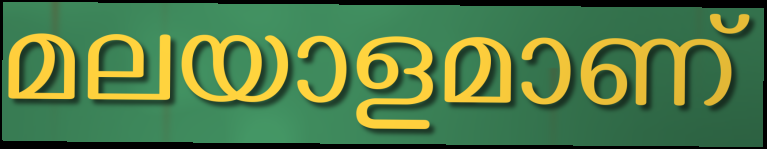
മലയാളമാണ്